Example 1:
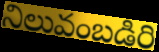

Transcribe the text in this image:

నిలువంబడిరి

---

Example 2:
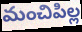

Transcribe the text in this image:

మంచిపిల్ల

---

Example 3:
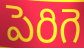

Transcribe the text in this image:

పెరిగె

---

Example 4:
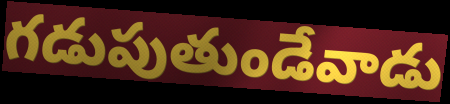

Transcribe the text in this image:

గడుపుతుండేవాడు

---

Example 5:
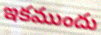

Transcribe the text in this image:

ఇకముందు